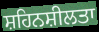
ਸ਼ਹਿਨਸ਼ੀਲਤਾ